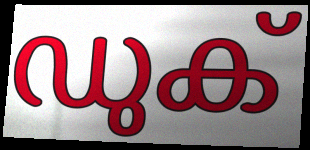
ഡുക്